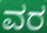
ವರ